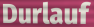
Durlauf